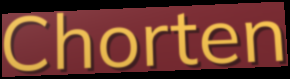
Chorten